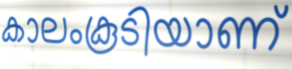
കാലംകൂടിയാണ്